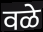
वळे